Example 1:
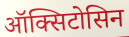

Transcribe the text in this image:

ऑक्सिटोसिन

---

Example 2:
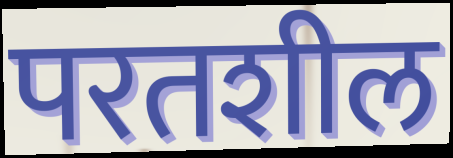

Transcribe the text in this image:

परतशील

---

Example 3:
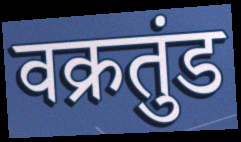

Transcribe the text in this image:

वक्रतुंड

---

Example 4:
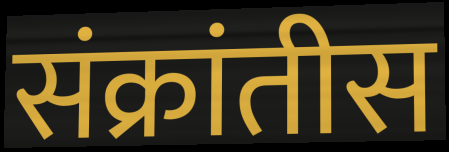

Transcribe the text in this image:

संक्रांतीस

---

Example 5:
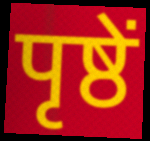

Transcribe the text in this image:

पृष्ठें